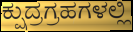
ಕ್ಷುದ್ರಗ್ರಹಗಳಲ್ಲಿ